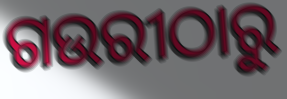
ଗଉରୀଠାରୁ